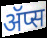
ॲप्स